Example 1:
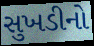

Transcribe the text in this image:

સુખડીનો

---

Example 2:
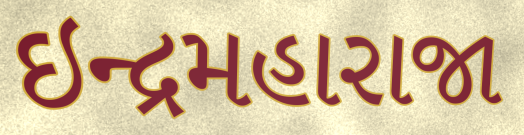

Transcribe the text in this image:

ઇન્દ્રમહારાજા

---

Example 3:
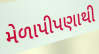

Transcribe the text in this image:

મેળાપીપણાથી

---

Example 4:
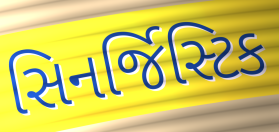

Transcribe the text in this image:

સિનર્જિસ્ટિક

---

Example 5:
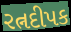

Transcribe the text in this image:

રત્નદીપક